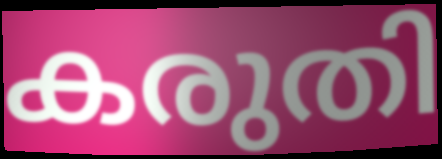
കരുതി